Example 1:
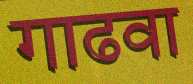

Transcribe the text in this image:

गाढवा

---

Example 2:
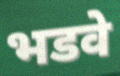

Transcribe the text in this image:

भडवे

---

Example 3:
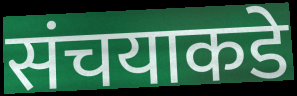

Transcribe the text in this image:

संचयाकडे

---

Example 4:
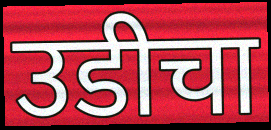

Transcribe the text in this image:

उडीचा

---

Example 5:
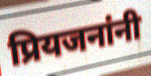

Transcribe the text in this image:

प्रियजनांनी